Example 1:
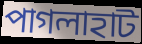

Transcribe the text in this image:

পাগলাহাট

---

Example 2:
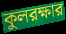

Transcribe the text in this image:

কুলরক্ষার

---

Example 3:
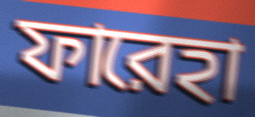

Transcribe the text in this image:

ফারেহা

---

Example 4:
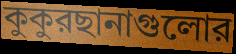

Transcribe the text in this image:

কুকুরছানাগুলোর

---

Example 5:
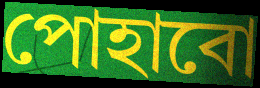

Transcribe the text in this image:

পোহাবো